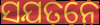
ସଯତନେ